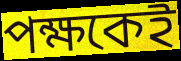
পক্ষকেই